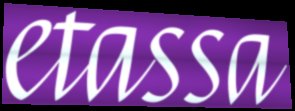
etassa